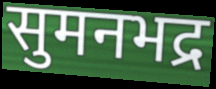
सुमनभद्र